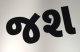
જશ